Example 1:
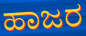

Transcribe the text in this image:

ಹಾಜರ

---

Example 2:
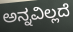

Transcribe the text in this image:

ಅನ್ನವಿಲ್ಲದೆ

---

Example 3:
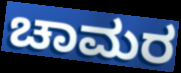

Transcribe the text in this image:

ಚಾಮರ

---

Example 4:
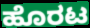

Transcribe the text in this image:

ಹೊರಟ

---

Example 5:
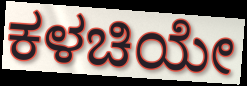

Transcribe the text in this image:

ಕಳಚಿಯೇ